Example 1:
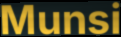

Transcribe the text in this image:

Munsi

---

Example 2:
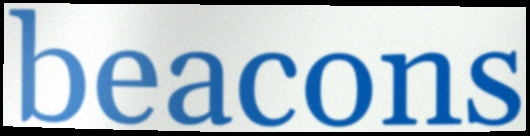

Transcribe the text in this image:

beacons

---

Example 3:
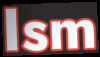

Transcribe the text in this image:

Ism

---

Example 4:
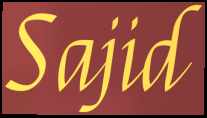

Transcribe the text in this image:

Sajid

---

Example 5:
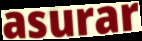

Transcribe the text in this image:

asurar